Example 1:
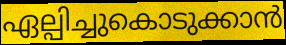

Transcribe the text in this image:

ഏല്പിച്ചുകൊടുക്കാൻ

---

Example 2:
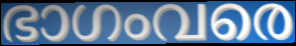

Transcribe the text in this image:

ഭാഗംവരെ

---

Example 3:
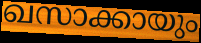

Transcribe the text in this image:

ഖസാക്കായും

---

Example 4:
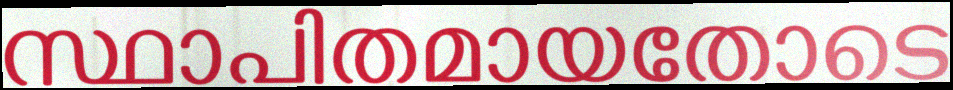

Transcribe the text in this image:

സ്ഥാപിതമായതോടെ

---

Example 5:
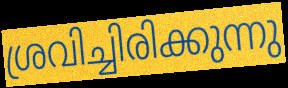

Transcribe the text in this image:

ശ്രവിച്ചിരിക്കുന്നു